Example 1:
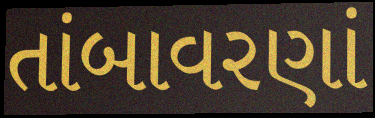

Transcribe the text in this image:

તાંબાવરણાં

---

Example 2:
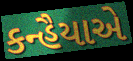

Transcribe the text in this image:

કન્હૈયાએ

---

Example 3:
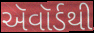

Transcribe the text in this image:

ઍવૉર્ડથી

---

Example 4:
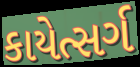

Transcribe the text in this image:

કાયેત્સર્ગ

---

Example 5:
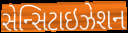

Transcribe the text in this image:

સેન્સિટાઇઝેશન